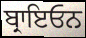
ਬ੍ਰਾਇਓਨ